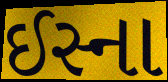
ઈસ્ના